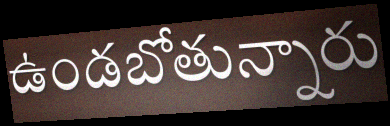
ఉండబోతున్నారు